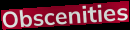
Obscenities